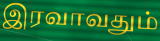
இரவாவதும்